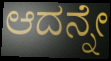
ಆದನ್ನೇ